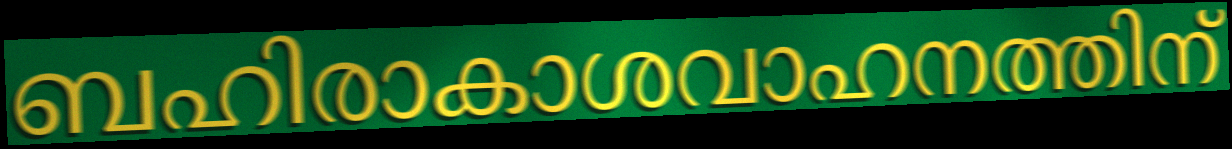
ബഹിരാകാശവാഹനത്തിന്